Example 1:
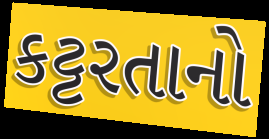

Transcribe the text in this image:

કટ્ટરતાનો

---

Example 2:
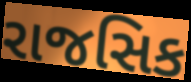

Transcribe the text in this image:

રાજસિક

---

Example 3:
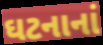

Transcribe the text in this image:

ઘટનાનાં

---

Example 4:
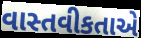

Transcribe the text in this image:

વાસ્તવીકતાએ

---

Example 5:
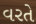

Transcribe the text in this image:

વરતે